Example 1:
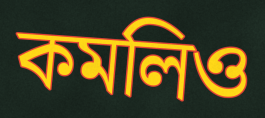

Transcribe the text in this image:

কমলিও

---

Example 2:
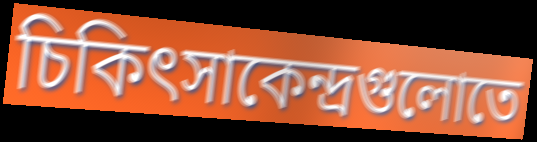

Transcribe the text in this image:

চিকিৎসাকেন্দ্রগুলোতে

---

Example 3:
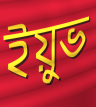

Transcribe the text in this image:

ইয়ুভ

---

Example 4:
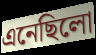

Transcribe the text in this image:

এনেছিলো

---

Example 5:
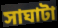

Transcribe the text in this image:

সাঘাটা